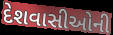
દેશવાસીઓની